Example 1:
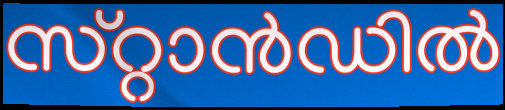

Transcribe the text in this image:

സ്‌റ്റാൻഡിൽ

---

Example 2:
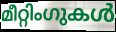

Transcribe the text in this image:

മീറ്റിംഗുകൾ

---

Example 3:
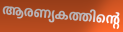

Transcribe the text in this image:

ആരണ്യകത്തിന്റെ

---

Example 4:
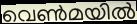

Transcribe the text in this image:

വെൺമയിൽ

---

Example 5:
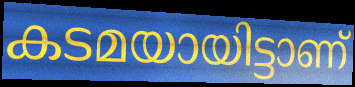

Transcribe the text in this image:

കടമയായിട്ടാണ്